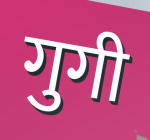
गुगी